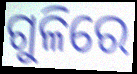
ଗୁଳିରେ